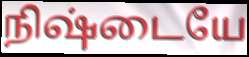
நிஷ்டையே